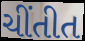
ચીંતીત